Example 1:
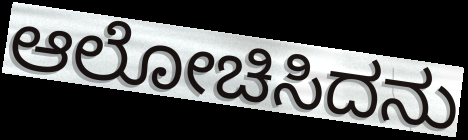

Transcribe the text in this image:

ಆಲೋಚಿಸಿದನು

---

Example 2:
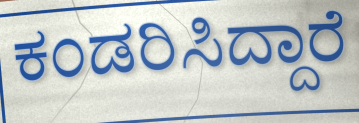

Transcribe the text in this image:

ಕಂಡರಿಸಿದ್ದಾರೆ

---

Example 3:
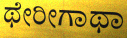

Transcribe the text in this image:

ಥೇರೀಗಾಥಾ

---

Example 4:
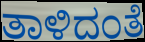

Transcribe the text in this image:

ತಾಳಿದಂತೆ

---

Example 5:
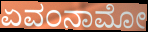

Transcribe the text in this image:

ಏವಂನಾಮೋ